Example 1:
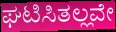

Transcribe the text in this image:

ಘಟಿಸಿತಲ್ಲವೇ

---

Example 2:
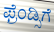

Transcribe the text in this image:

ಫ್ರೆಂಡ್ಸಿಗೆ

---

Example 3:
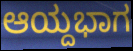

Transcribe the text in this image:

ಆಯ್ದಭಾಗ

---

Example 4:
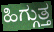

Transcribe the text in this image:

ಹಿಗ್ಗುತ್ತ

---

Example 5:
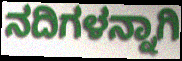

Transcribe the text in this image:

ನದಿಗಳನ್ನಾಗಿ